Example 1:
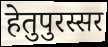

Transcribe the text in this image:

हेतुपुरस्सर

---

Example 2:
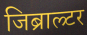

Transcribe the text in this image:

जिब्राल्टर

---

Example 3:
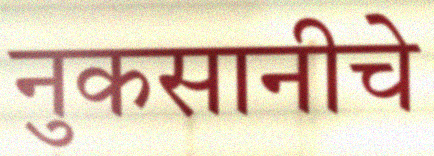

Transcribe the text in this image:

नुकसानीचे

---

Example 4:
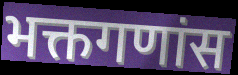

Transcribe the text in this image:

भक्तगणांस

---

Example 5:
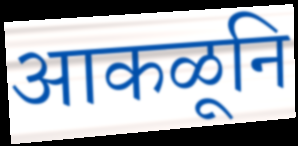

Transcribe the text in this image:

आकळूनि